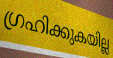
ഗ്രഹിക്കുകയില്ല